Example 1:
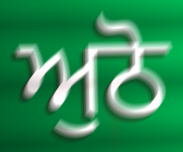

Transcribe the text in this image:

ਅੁਠੋ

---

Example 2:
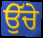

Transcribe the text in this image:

ਉੱਚੇ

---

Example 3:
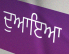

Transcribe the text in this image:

ਦੁਆਇਆ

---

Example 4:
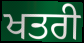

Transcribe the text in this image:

ਖਤਰੀ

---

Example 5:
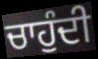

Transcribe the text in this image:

ਚਾਹੁੰਦੀ